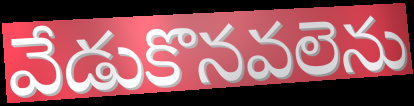
వేడుకొనవలెను